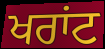
ਖਰਾਂਟ